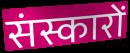
संस्कारों